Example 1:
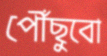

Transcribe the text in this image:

পৌঁছুবো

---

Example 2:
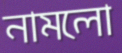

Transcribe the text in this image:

নামলো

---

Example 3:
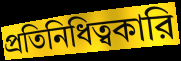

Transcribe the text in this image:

প্রতিনিধিত্বকারি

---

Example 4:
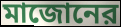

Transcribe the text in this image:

মাজোনের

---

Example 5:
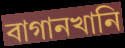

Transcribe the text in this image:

বাগানখানি